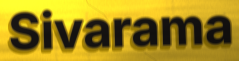
Sivarama